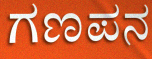
ಗಣಪನ